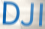
DJI